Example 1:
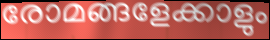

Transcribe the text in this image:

രോമങ്ങളേക്കാളും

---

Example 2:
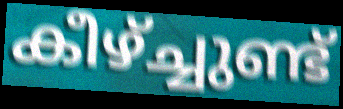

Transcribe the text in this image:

കീഴ്ച്ചുണ്ട്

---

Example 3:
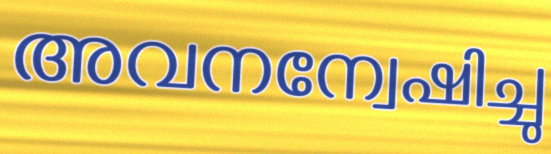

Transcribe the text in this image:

അവനന്വേഷിച്ചു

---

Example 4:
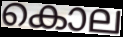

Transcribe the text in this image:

കൊല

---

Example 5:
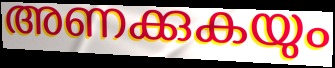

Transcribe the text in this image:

അണക്കുകയും